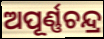
ଅପୂର୍ଣ୍ଣଚନ୍ଦ୍ର